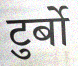
टुर्बो